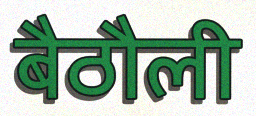
बैठौली